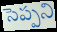
సెప్పని